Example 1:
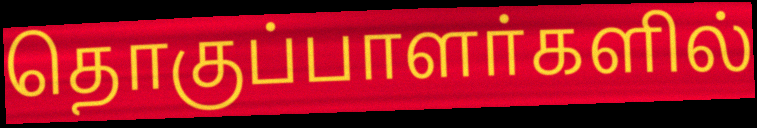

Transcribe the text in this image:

தொகுப்பாளர்களில்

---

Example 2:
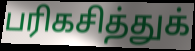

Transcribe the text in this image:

பரிகசித்துக்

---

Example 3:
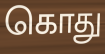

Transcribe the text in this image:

கொது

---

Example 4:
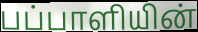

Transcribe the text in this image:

பப்பாளியின்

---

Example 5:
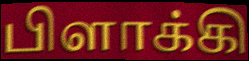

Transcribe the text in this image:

பிளாக்கி